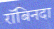
रॉबिनदा